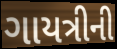
ગાયત્રીની